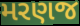
મરણજ